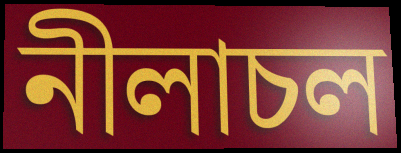
নীলাচল